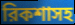
রিকশাসহ